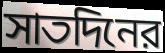
সাতদিনের